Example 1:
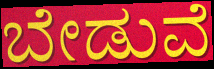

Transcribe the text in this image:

ಬೇಡುವೆ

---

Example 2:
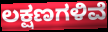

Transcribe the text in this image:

ಲಕ್ಷಣಗಳಿವೆ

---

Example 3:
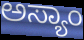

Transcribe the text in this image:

ಅಸ್ಯಾಂ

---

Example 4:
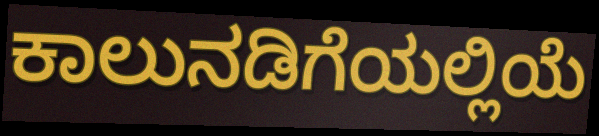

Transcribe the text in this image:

ಕಾಲುನಡಿಗೆಯಲ್ಲಿಯೆ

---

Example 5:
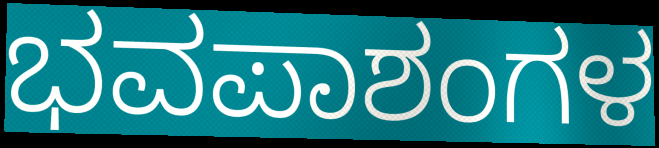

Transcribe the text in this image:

ಭವಪಾಶಂಗಳ